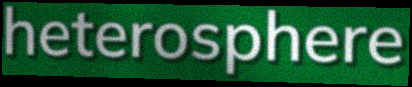
heterosphere